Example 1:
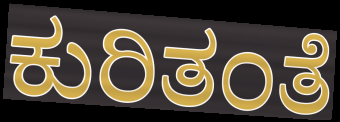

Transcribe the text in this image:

ಕುರಿತಂತೆ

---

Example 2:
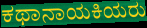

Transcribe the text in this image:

ಕಥಾನಾಯಕಿಯರು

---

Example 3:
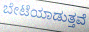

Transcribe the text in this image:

ಬೇಟೆಯಾಡುತ್ತವೆ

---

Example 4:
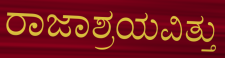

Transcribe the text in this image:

ರಾಜಾಶ್ರಯವಿತ್ತು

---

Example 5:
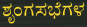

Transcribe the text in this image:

ಶೃಂಗಸಭೆಗಳ